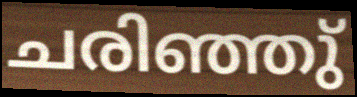
ചരിഞ്ഞു്